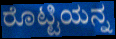
ರೊಟ್ಟಿಯನ್ನ